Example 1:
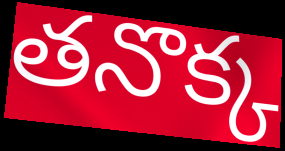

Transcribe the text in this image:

తనొక్క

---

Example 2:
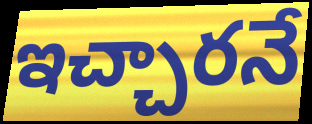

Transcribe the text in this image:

ఇచ్చారనే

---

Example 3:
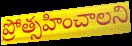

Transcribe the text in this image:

ప్రోత్సహించాలని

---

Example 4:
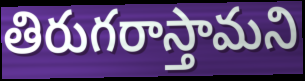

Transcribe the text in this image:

తిరుగరాస్తామని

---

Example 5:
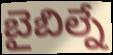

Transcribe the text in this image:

బైబిల్నే